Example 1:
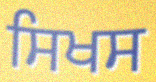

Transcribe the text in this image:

ਸਿਖਸ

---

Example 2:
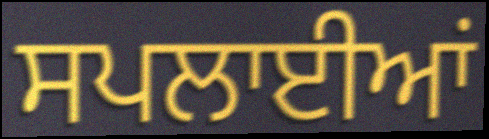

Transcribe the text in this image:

ਸਪਲਾਈਆਂ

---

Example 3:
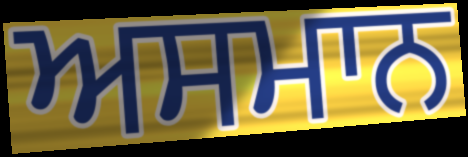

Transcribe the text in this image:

ਅਸਮਾਨ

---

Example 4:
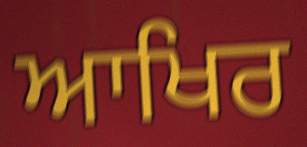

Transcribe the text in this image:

ਆਖਿਰ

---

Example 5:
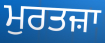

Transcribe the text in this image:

ਮੁਰਤਜ਼ਾ